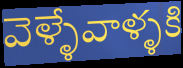
వెళ్ళేవాళ్ళకి